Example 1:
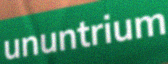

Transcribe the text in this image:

ununtrium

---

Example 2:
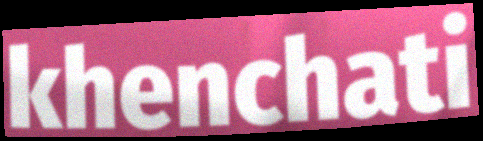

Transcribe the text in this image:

khenchati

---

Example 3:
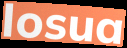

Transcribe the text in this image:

Iosua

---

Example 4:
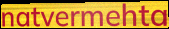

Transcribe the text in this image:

natvermehta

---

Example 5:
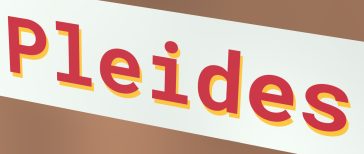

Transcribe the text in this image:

Pleides